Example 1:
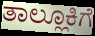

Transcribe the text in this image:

ತಾಲ್ಲೂಕಿಗೆ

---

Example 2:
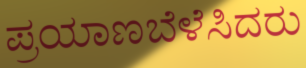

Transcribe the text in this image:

ಪ್ರಯಾಣಬೆಳೆಸಿದರು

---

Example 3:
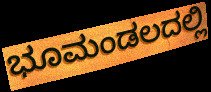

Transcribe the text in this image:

ಭೂಮಂಡಲದಲ್ಲಿ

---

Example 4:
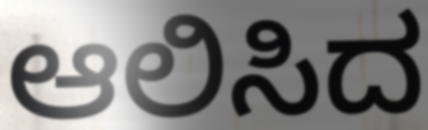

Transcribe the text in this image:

ಆಲಿಸಿದ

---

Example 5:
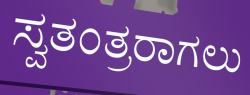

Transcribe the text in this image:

ಸ್ವತಂತ್ರರಾಗಲು